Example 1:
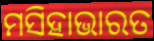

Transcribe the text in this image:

ମସିହାଭାରତ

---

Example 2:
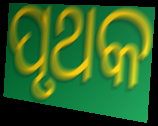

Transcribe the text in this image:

ପୃଥକ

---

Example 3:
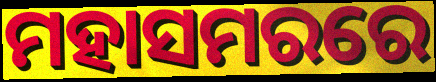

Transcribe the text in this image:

ମହାସମରରେ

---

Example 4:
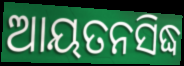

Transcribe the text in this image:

ଆୟତନସିଦ୍ଧ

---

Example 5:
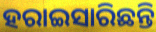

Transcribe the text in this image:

ହରାଇସାରିଛନ୍ତି